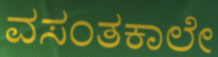
ವಸಂತಕಾಲೇ